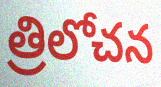
త్రిలోచన